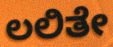
ಲಲಿತೇ